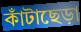
কাঁটাছেড়া